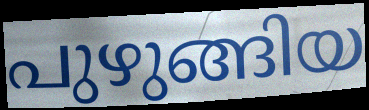
പുഴുങ്ങിയ